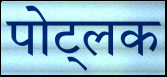
पोट्लक